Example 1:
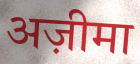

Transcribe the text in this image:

अज़ीमा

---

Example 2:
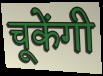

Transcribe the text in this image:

चूकेंगी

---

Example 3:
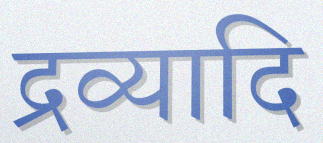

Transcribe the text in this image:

द्रव्यादि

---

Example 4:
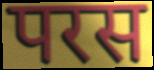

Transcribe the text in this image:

परस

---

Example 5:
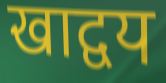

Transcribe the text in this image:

खाद्वय